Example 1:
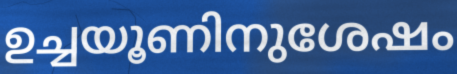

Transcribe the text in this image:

ഉച്ചയൂണിനുശേഷം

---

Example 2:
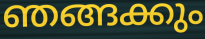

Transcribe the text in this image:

ഞങ്ങക്കും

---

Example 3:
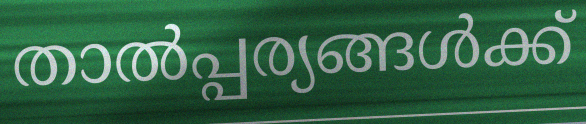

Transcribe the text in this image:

താൽപ്പര്യങ്ങൾക്ക്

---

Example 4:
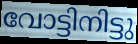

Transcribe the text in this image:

വോട്ടിനിട്ടു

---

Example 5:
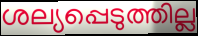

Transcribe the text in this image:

ശല്യപ്പെടുത്തില്ല